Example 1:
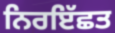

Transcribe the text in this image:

ਨਿਰਇੱਛਤ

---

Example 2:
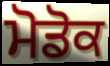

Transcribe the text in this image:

ਮੋਡੋਕ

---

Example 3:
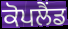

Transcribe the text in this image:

ਕੋਪਲੈਂਡ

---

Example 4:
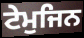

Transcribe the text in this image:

ਟੇਮੁਜਿਨ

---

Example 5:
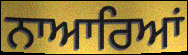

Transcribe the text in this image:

ਨਾਆਰਿਆਂ